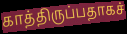
காத்திருப்பதாகச்